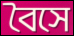
বৈসে